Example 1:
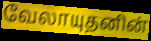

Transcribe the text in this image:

வேலாயுதனின்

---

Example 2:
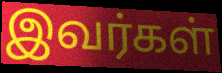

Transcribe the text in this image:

இவர்கள்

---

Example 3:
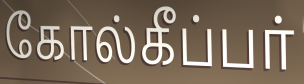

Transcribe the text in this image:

கோல்கீப்பர்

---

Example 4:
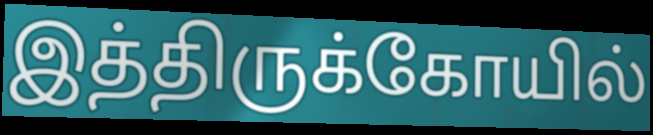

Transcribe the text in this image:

இத்திருக்கோயில்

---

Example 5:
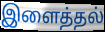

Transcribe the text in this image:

இளைத்தல்